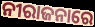
ନୀରାଜନାରେ